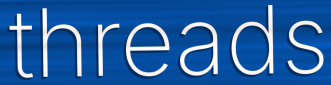
threads